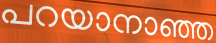
പറയാനാഞ്ഞ